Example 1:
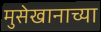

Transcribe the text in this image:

मुसेखानाच्या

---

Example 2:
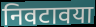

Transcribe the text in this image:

निवटावया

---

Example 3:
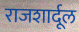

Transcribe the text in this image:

राजशार्दूल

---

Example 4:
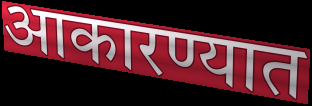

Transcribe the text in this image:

आकारण्यात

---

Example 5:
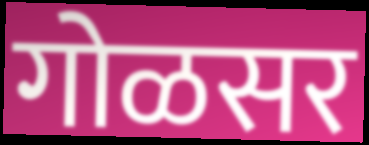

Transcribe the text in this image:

गोळसर